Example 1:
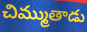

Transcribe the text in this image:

చిమ్ముతాడు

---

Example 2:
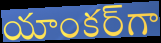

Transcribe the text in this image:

యాంకర్‌గా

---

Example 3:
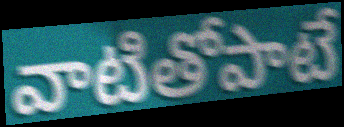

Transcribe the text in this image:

వాటితోపాటే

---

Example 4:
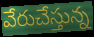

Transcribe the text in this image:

వేరుచేస్తున్న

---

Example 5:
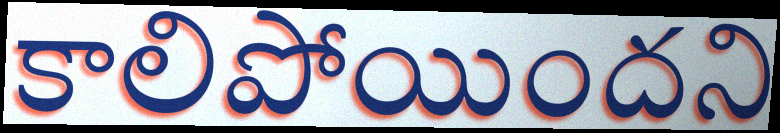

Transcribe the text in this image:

కాలిపోయిందని